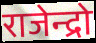
राजेन्द्रो